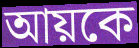
আয়কে